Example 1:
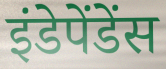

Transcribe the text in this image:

इंडेपेंडेंस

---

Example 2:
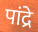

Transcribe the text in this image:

पांद्रे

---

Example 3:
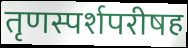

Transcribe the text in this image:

तृणस्पर्शपरीषह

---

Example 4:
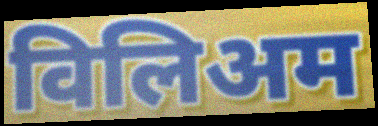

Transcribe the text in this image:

विलिअम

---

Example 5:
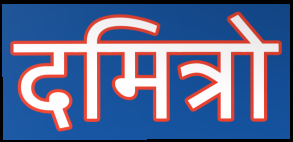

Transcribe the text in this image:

दमित्रो